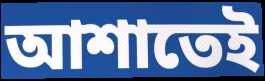
আশাতেই